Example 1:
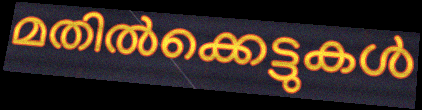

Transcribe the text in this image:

മതിൽക്കെട്ടുകൾ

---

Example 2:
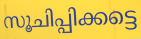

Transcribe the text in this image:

സൂചിപ്പിക്കട്ടെ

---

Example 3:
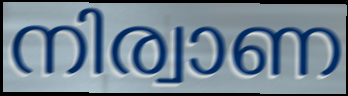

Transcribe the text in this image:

നിര്വാണ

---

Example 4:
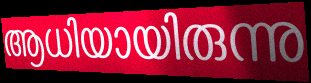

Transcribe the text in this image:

ആധിയായിരുന്നു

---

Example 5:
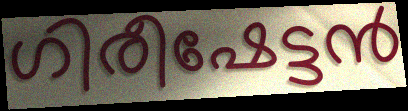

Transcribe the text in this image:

ഗിരീഷേട്ടൻ